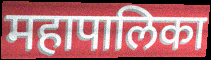
महापालिका